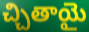
చ్చితాయై